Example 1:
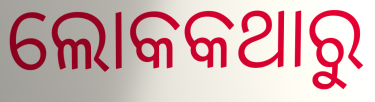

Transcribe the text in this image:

ଲୋକକଥାରୁ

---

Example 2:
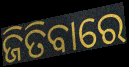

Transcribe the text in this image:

ଜିତିବାରେ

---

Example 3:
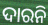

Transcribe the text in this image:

ଦାରନି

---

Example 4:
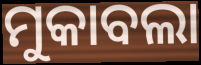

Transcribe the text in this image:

ମୁକାବଲା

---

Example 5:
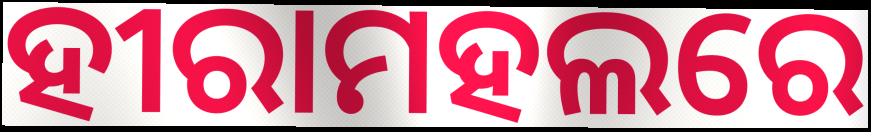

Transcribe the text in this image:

ହୀରାମହଲରେ